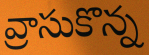
వ్రాసుకొన్న